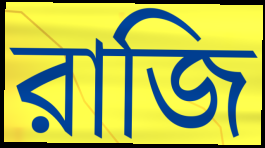
রাজি